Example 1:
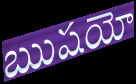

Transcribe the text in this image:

ఋషయో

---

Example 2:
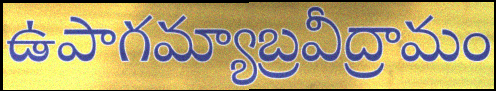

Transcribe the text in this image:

ఉపాగమ్యాబ్రవీద్రామం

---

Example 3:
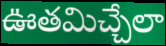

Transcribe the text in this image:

ఊతమిచ్చేలా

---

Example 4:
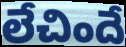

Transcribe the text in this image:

లేచిందే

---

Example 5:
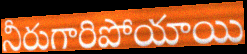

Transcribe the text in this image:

నీరుగారిపోయాయి